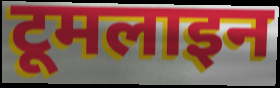
टूमलाइन